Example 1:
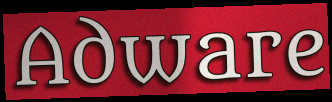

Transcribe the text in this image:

Adware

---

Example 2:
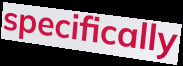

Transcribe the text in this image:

specifically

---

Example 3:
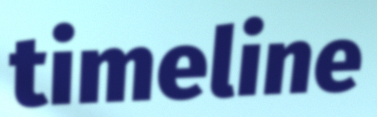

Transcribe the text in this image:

timeline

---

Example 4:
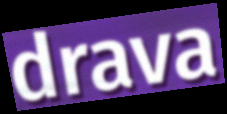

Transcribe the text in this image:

drava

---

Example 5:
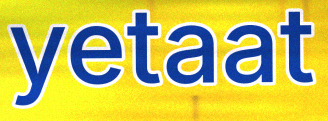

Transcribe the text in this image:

yetaat